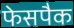
फेसपैक